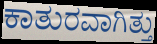
ಕಾತುರವಾಗಿತ್ತು